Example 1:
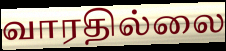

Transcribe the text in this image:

வாரதில்லை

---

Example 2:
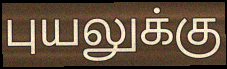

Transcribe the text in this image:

புயலுக்கு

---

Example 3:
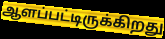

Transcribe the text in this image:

ஆளப்பட்டிருக்கிறது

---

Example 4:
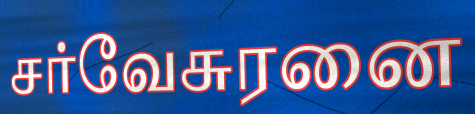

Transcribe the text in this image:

சர்வேசுரனை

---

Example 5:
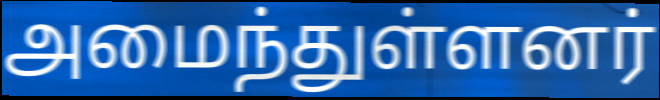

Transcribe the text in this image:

அமைந்துள்ளனர்